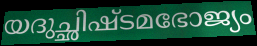
യദുച്ഛിഷ്ടമഭോജ്യം